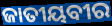
ଜାତୀୟବୀର